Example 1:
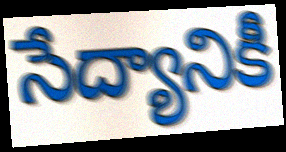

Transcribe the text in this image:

సేద్యానికీ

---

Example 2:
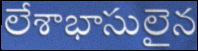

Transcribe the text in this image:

లేశాభాసులైన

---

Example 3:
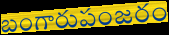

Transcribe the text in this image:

బంగారుపంజరం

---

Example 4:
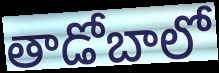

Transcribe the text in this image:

తాడోబాలో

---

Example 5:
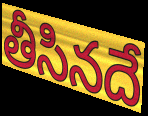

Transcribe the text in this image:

తీసినదే